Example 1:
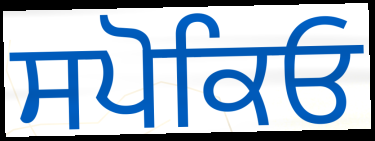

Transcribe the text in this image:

ਸਪੋਕਿਓ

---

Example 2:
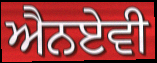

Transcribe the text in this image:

ਐਨਏਵੀ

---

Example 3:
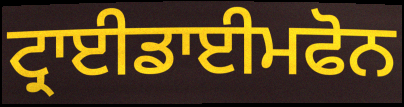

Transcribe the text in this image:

ਟ੍ਰਾਈਡਾਈਮਫੋਨ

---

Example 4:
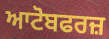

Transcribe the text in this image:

ਆਟੋਬਫਰਜ਼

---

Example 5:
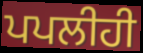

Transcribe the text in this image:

ਪਪਲੀਹੀ